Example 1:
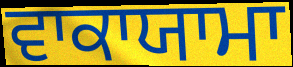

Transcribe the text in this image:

ਵਾਕਾਯਾਮਾ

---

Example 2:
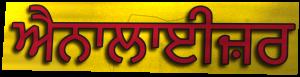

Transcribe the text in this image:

ਐਨਾਲਾਈਜ਼ਰ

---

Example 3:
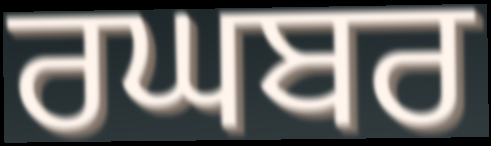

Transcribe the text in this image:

ਰਘਬਰ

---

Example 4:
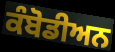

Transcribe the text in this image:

ਕੰਬੋਡੀਅਨ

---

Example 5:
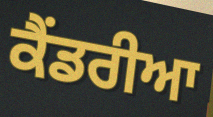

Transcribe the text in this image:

ਕੈਂਡਰੀਆ